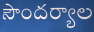
సౌందర్యాల